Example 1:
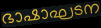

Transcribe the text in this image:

ഭാഷാഘടന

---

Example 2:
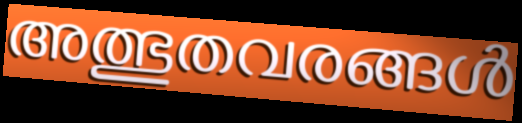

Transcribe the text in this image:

അത്ഭുതവരങ്ങൾ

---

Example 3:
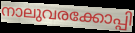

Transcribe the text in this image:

നാലുവരക്കോപ്പി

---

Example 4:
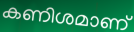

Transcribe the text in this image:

കണിശമാണ്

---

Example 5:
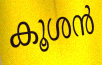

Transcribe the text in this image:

കൂശൻ